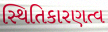
સ્થિતિકારણત્વ